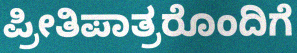
ಪ್ರೀತಿಪಾತ್ರರೊಂದಿಗೆ